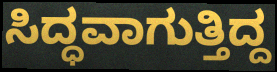
ಸಿದ್ಧವಾಗುತ್ತಿದ್ದ